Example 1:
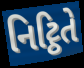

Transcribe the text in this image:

નિટ્ઠિતે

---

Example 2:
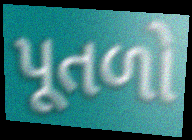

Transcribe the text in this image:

પૂતળો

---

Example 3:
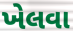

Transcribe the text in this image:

ખેલવા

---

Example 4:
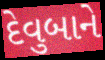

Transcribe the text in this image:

દેવુબાને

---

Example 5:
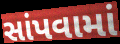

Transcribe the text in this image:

સાંપવામાં